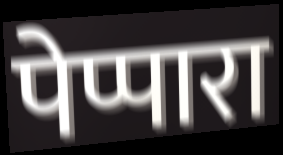
पेप्पारा